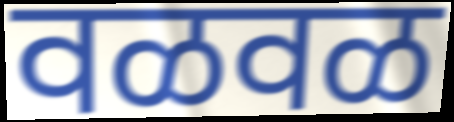
वळवळ